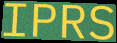
IPRS